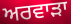
ਅਰਵਾੜਾ